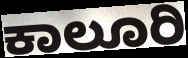
ಕಾಲೂರಿ